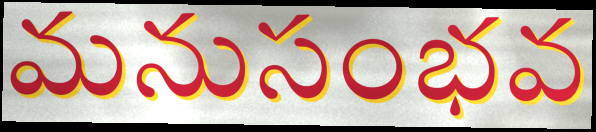
మనుసంభవ